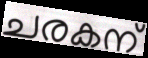
ചരകന്